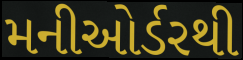
મનીઓર્ડરથી